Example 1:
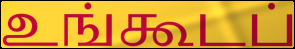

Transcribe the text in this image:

உங்கூடப்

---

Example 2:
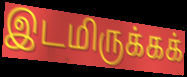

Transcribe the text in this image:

இடமிருக்கக்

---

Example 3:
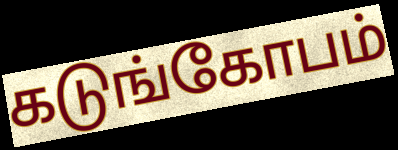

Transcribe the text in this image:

கடுங்கோபம்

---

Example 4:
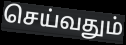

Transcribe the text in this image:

செய்வதும்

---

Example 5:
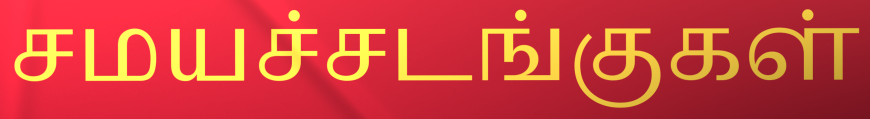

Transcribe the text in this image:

சமயச்சடங்குகள்